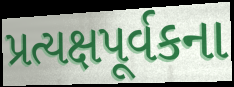
પ્રત્યક્ષપૂર્વકના